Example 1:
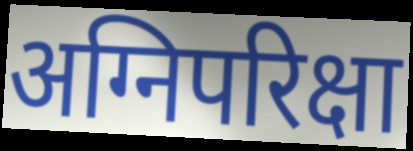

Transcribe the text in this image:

अग्निपरिक्षा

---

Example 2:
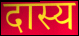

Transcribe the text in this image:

दास्य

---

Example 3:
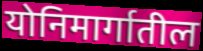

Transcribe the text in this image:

योनिमार्गातील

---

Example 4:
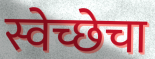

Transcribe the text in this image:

स्वेच्छेचा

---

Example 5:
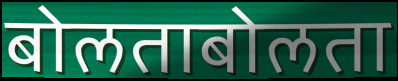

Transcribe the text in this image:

बोलताबोलता